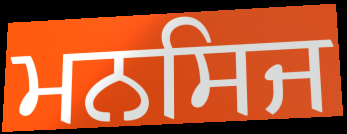
ਮਨਸਿਜ